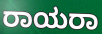
ರಾಯರಾ